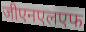
जीएनएलएफ